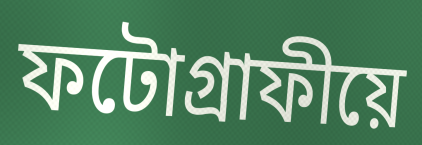
ফটোগ্ৰাফীয়ে